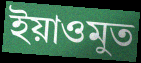
ইয়াওমুত